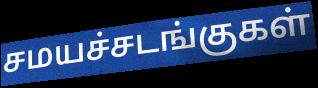
சமயச்சடங்குகள்